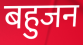
बहुजन